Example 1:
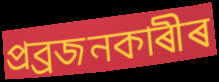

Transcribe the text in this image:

প্ৰব্ৰজনকাৰীৰ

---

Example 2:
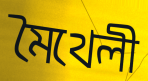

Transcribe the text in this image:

মৈথেলী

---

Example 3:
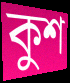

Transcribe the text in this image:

কুশ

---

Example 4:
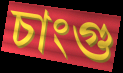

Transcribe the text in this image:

চাংগু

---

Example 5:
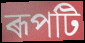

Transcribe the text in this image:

ৰূপটি